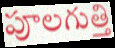
పూలగుత్తి